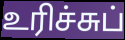
உரிச்சுப்